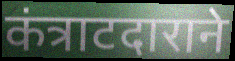
कंत्राटदाराने